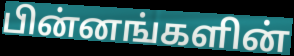
பின்னங்களின்